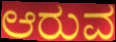
ಆರುವ